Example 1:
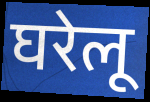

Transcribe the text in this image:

घरेलू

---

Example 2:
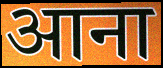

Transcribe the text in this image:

आना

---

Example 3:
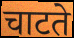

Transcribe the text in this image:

चाटते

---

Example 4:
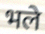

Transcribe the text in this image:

भले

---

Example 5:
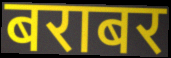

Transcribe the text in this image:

बराबर